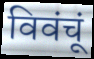
विवंचूं